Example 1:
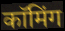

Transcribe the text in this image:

कॉमिंग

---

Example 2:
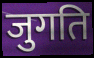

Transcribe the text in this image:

जुगति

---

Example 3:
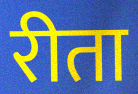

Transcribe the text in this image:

रीता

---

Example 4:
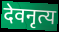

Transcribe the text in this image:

देवनृत्य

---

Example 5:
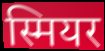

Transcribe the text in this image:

स्मियर